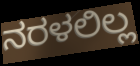
ನರಳಲಿಲ್ಲ